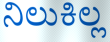
ನಿಲುಕಿಲ್ಲ